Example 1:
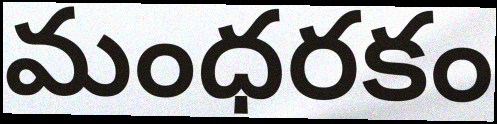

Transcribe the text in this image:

మంధరకం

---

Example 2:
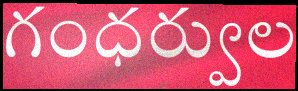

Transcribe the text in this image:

గంధర్వుల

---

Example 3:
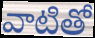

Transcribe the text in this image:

వాటితో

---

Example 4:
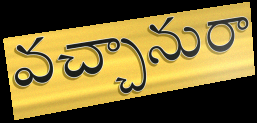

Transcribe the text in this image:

వచ్చానురా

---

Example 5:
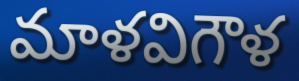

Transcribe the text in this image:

మాళవిగౌళ